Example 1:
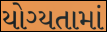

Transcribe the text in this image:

યોગ્યતામાં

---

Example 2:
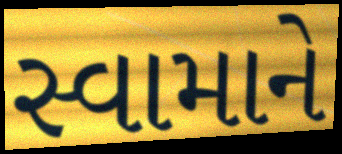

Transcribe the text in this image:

સ્વામાને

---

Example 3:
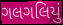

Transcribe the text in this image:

ગલગલિયું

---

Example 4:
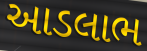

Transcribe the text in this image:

આડલાભ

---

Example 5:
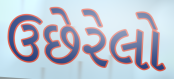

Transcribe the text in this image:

ઉછેરેલો